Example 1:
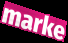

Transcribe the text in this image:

marke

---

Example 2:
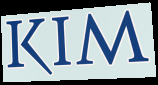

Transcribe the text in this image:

KIM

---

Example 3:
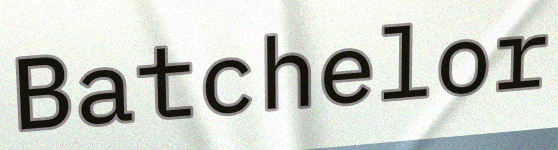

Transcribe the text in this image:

Batchelor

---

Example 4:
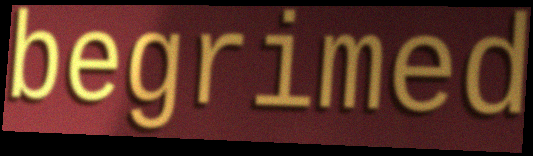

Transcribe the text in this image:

begrimed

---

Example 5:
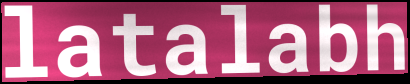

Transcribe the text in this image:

latalabh